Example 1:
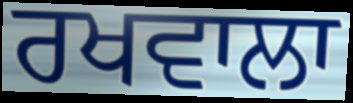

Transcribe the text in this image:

ਰਖਵਾਲਾ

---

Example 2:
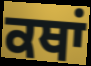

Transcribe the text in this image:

ਕਥਾਂ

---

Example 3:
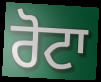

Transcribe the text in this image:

ਰੋਟਾ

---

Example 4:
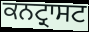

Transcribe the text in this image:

ਕਨਟ੍ਰਾਸਟ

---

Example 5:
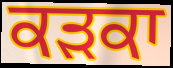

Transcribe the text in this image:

ਕੜਕਾ